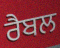
ਰੈਬਲ